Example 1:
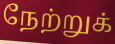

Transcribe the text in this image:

நேற்றுக்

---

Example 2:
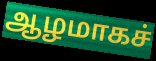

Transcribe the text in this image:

ஆழமாகச்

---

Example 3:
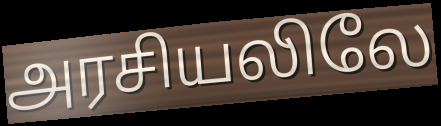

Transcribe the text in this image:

அரசியலிலே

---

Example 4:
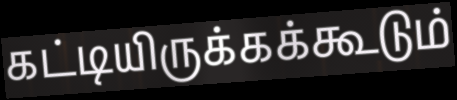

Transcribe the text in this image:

கட்டியிருக்கக்கூடும்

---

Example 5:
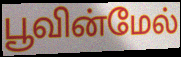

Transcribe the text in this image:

பூவின்மேல்